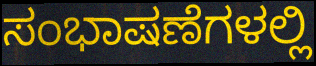
ಸಂಭಾಷಣೆಗಳಲ್ಲಿ